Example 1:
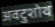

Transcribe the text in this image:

अवटुशोथ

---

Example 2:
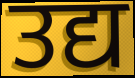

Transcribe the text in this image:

उद्य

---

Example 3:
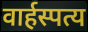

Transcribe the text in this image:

वार्हस्पत्य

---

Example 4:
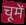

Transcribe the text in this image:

चूमें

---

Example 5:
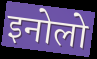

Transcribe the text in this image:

इनोलो